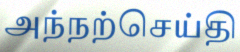
அந்நற்செய்தி